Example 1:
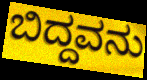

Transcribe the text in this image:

ಬಿದ್ದವನು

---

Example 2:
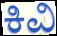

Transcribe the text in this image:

ಕಿವಿ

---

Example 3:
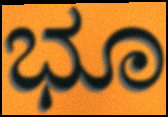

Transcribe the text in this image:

ಭೂ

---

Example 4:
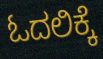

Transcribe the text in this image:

ಓದಲಿಕ್ಕೆ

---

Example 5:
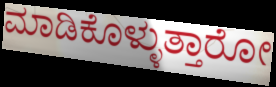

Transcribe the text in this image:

ಮಾಡಿಕೊಳ್ಳುತ್ತಾರೋ